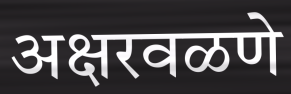
अक्षरवळणे